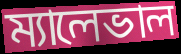
ম্যালেভাল